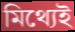
মিথ্যেই